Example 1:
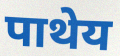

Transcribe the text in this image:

पाथेय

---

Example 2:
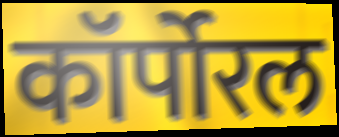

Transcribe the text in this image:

कॉर्पोरल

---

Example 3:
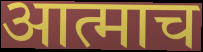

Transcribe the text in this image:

आत्माच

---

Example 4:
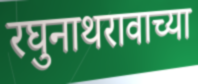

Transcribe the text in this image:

रघुनाथरावाच्या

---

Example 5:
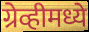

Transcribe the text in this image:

ग्रेव्हीमध्ये